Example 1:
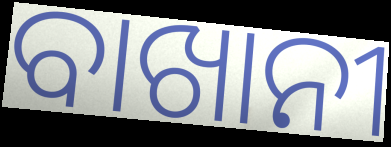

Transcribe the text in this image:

ବାଖାନୀ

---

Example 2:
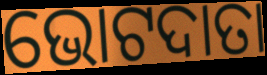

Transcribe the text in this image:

ଭୋଟଦାତା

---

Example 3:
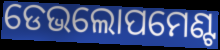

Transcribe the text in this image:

ଡେଭଲୋପମେଣ୍ଟ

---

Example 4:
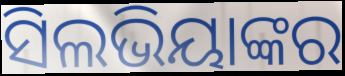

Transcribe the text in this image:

ସିଲଭିୟାଙ୍କର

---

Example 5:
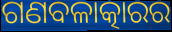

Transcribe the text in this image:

ଗଣବଳାତ୍କାରର